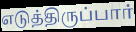
எடுத்திருப்பார்